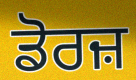
ਡੋਰਜ਼